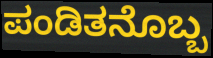
ಪಂಡಿತನೊಬ್ಬ